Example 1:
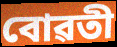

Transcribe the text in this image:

বোৱতী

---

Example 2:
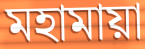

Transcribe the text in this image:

মহামায়া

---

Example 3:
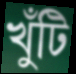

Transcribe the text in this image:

খুঁটি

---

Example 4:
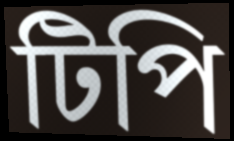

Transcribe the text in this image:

টিপি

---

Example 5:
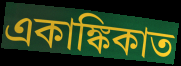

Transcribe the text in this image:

একাঙ্কিকাত